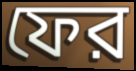
ফের